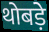
थोबड़े